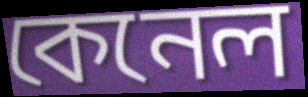
কেনেল